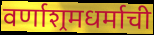
वर्णाश्रमधर्माची